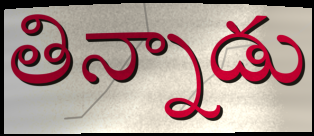
తిన్నాడు